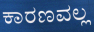
ಕಾರಣವಲ್ಲ